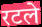
रटले